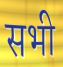
सभी